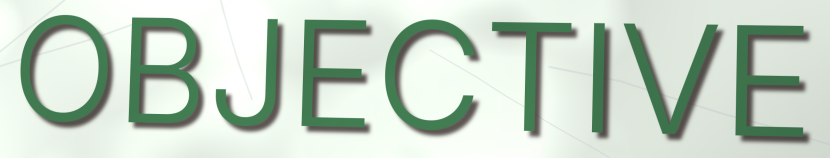
OBJECTIVE